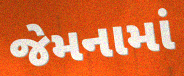
જેમનામાં